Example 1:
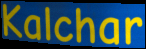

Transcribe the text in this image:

Kalchar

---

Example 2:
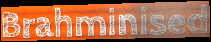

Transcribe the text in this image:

Brahminised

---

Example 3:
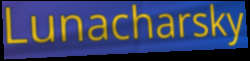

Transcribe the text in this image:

Lunacharsky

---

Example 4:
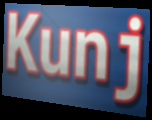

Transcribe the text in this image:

Kunj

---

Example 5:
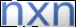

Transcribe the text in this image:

nxn